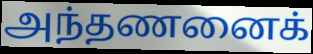
அந்தணனைக்